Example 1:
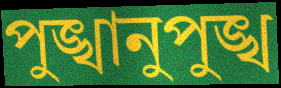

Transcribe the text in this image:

পুঙ্খানুপুঙ্খ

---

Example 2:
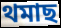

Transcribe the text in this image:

থমাছ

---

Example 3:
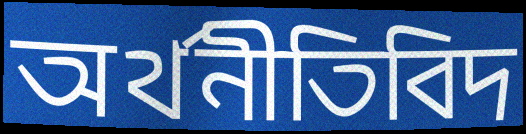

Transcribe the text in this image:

অৰ্থনীতিবিদ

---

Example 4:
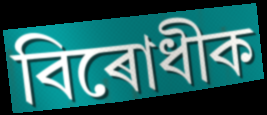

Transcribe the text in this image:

বিৰোধীক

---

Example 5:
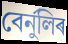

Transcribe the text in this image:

বেৰ্নুলিৰ